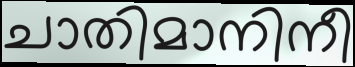
ചാതിമാനിനീ